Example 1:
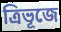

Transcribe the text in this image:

ত্ৰিভূজে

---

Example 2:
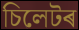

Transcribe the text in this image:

চিলেটৰ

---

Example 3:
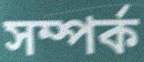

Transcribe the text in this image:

সম্পৰ্ক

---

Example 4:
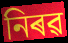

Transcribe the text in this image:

নিৰৱ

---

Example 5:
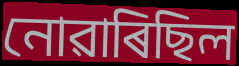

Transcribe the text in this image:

নোৱাৰিছিল